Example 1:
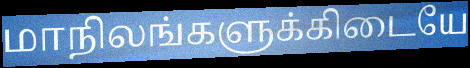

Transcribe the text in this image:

மாநிலங்களுக்கிடையே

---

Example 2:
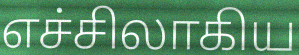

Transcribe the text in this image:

எச்சிலாகிய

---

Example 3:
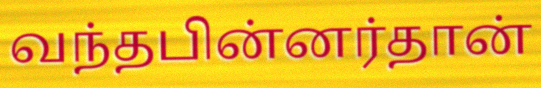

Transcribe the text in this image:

வந்தபின்னர்தான்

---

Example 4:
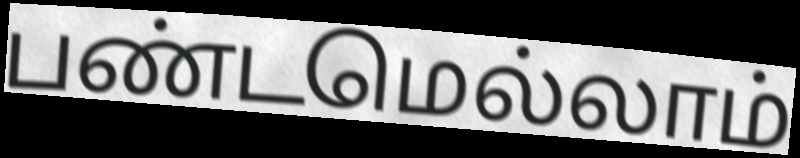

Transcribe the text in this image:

பண்டமெல்லாம்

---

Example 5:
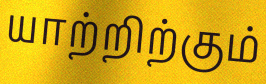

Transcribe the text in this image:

யாற்றிற்கும்